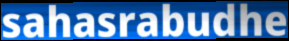
sahasrabudhe